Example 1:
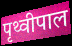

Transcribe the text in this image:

पृथ्वीपाल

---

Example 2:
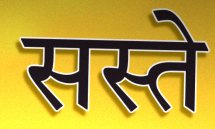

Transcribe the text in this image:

सस्‍ते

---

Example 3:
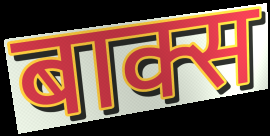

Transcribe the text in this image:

बाक्स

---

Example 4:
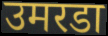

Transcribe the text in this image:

उमरडा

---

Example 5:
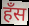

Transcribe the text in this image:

हँस